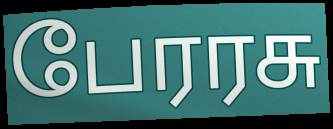
பேரரசு